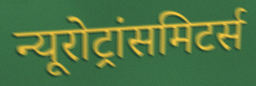
न्यूरोट्रांसमिटर्स